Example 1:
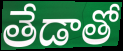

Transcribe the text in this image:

తేడాతో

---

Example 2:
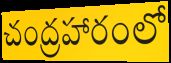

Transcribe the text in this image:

చంద్రహారంలో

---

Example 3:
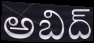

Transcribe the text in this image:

అబిద్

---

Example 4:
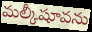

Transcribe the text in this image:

మల్కీషూవను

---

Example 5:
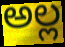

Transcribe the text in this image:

అల్ల